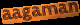
aagaman